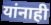
यांनाही